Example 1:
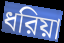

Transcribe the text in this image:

ধরিয়া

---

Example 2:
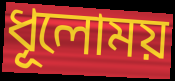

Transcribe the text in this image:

ধূলোময়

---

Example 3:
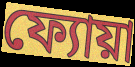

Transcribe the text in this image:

ফ্যোয়া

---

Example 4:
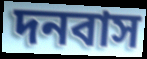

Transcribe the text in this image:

দনবাস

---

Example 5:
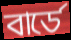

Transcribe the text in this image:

বার্ডে